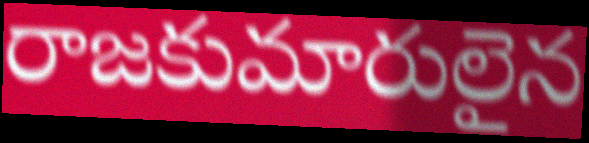
రాజకుమారులైన